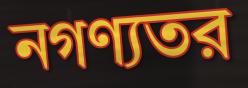
নগণ্যতর